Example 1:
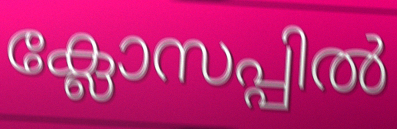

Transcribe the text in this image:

ക്ലോസപ്പിൽ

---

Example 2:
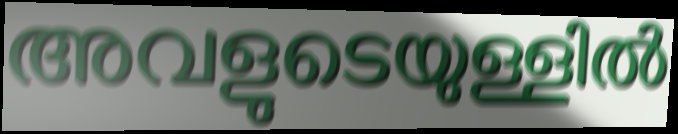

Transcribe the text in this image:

അവളുടെയുള്ളിൽ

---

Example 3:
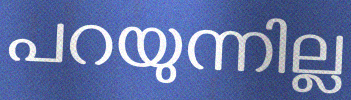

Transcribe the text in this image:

പറയുന്നില്ല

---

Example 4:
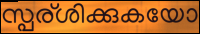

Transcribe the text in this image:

സ്പര്ശിക്കുകയോ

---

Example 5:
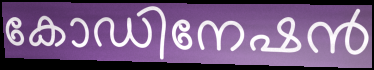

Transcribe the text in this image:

കോഡിനേഷൻ